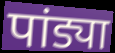
पांड्या